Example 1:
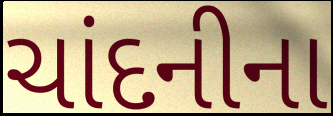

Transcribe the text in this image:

ચાંદનીના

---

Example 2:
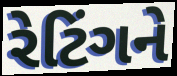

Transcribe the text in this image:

રેટિંગને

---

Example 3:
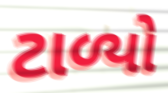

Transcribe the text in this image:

ટાળ્યો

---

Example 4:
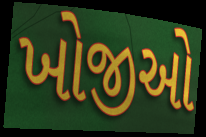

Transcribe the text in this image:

ખોજીઓ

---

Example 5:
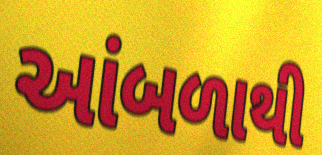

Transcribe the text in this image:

આંબળાથી